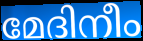
മേദിനീം